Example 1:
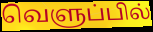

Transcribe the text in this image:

வெளுப்பில்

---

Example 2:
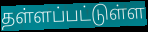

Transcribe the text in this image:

தள்ளப்பட்டுள்ள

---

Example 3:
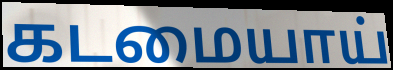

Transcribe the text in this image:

கடமையாய்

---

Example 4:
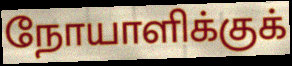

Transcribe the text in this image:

நோயாளிக்குக்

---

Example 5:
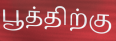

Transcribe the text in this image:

பூத்திற்கு